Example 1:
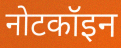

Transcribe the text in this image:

नोटकॉइन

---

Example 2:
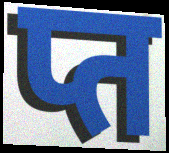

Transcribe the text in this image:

प्त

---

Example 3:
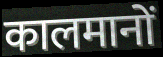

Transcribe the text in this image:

कालमानों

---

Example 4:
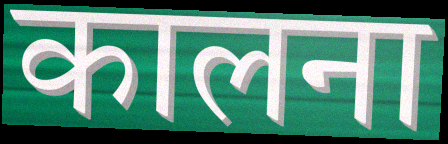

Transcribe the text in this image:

कालना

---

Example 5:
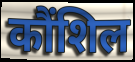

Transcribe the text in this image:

कौंशिल